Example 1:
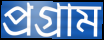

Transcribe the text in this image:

প্ৰগ্ৰাম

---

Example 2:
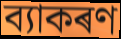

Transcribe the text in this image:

ব্যাকৰণ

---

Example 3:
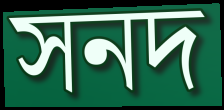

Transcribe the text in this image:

সনদ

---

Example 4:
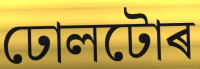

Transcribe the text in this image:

ঢোলটোৰ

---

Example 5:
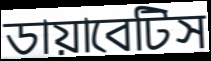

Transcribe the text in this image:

ডায়াবেটিস